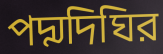
পদ্মদিঘির